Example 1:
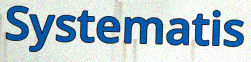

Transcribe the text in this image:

Systematis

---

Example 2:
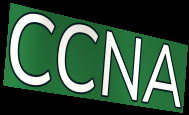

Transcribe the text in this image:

CCNA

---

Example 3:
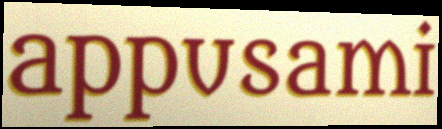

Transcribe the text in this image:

appusami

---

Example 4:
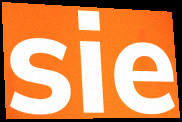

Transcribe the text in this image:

sie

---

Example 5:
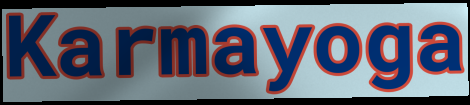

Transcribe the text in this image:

Karmayoga